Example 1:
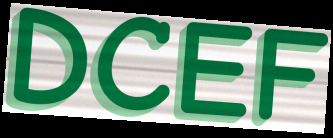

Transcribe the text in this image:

DCEF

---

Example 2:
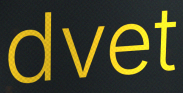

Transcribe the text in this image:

dvet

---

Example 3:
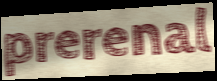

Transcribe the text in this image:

prerenal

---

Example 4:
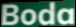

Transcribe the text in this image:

Boda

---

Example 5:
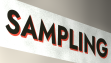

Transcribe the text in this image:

SAMPLING